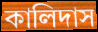
কালিদাস